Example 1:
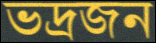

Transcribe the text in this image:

ভদ্রজন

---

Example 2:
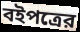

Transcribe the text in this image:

বইপত্রের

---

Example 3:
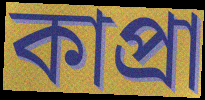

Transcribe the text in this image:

কাপ্রা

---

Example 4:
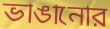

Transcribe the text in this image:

ভাঙানোর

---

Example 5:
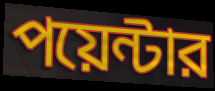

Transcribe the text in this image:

পয়েন্টার